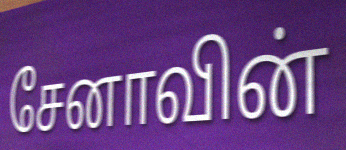
சேனாவின்